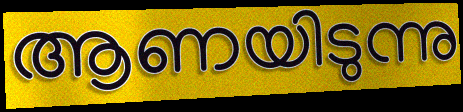
ആണയിടുന്നു